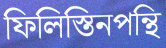
ফিলিস্তিনপন্থি